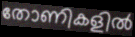
തോണികളിൽ